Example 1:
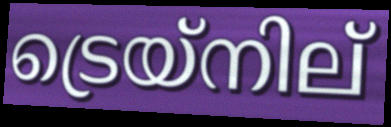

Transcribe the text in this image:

ട്രെയ്നില്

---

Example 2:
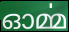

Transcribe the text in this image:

ഓൎമ്മ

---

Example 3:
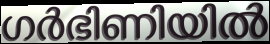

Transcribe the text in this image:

ഗർഭിണിയിൽ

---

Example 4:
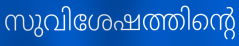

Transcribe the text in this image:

സുവിശേഷത്തിന്റെ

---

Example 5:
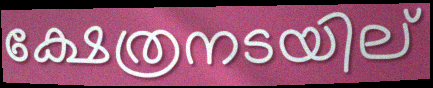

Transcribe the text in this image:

ക്ഷേത്രനടയില്